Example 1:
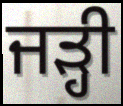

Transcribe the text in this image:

ਜੜ੍ਹੀ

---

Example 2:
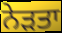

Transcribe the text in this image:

ਨੇੜਤਾ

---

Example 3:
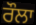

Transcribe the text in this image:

ਰੌਲਾ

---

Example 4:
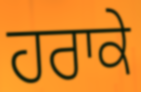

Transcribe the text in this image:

ਹਰਾਕੇ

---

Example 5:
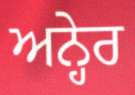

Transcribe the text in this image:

ਅਨ੍ਹੇਰ